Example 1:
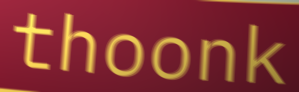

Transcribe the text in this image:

thoonk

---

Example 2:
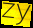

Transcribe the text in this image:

zy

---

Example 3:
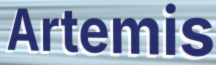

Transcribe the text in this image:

Artemis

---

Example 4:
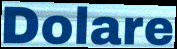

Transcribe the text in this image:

Dolare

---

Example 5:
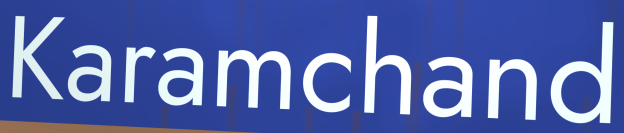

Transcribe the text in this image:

Karamchand